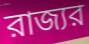
রাজ্যর